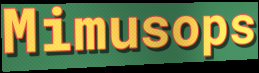
Mimusops